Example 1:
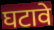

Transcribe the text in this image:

घटावे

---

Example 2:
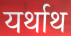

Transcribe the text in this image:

यर्थाथ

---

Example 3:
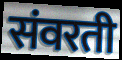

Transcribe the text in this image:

संवरती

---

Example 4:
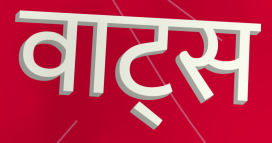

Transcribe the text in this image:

वाट्स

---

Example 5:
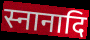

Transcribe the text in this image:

स्नानादि